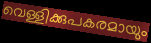
വെള്ളിക്കുപകരമായും